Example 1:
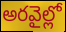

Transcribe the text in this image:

అరవైల్లో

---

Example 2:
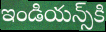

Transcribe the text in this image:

ఇండియన్స్‌కి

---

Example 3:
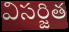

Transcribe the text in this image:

విసర్జిత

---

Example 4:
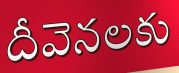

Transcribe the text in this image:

దీవెనలకు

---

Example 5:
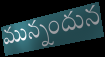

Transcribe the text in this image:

మున్నందున